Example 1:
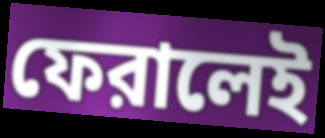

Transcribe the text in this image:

ফেরালেই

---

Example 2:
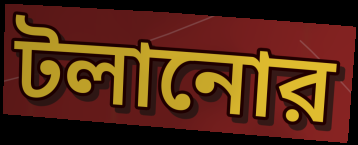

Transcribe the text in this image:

টলানোর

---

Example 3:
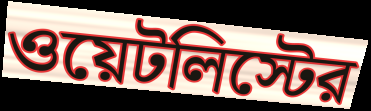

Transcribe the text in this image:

ওয়েটলিস্টের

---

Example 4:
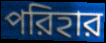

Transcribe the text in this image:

পরিহার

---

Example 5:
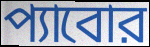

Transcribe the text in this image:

প্যাবোর